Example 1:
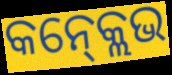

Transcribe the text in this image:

କନ୍କ୍ଲେଭ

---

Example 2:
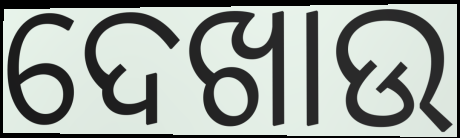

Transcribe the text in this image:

ଦେଖାଉ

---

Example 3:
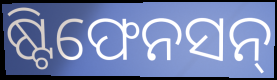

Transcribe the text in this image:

ଷ୍ଟିଫେନସନ୍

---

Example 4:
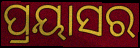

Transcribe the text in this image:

ପ୍ରୟାସର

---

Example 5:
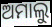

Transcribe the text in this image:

ଅମାଲୁ